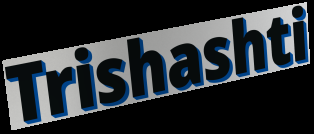
Trishashti